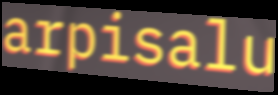
arpisalu